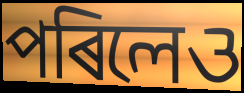
পৰিলেও